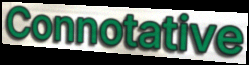
Connotative